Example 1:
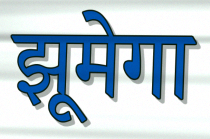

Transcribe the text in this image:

झूमेगा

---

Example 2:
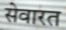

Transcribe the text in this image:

सेवारत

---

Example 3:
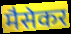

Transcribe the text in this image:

मैसेकर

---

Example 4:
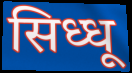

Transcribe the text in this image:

सिध्धू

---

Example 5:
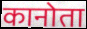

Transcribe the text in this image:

कानोता